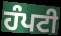
ਹੰਪਟੀ